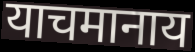
याचमानाय